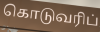
கொடுவரிப்